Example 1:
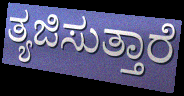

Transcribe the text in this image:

ತ್ಯಜಿಸುತ್ತಾರೆ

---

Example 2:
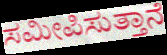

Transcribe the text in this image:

ಸಮೀಪಿಸುತ್ತಾನೆ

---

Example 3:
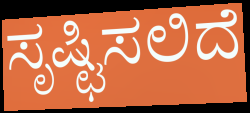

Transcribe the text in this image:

ಸೃಷ್ಟಿಸಲಿದೆ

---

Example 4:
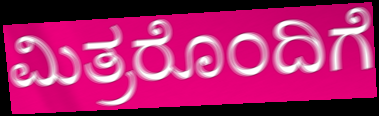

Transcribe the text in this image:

ಮಿತ್ರರೊಂದಿಗೆ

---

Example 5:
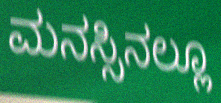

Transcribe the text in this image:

ಮನಸ್ಸಿನಲ್ಲೂ